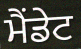
ਮੈਂਡੇਟ